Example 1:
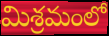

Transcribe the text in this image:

మిశ్రమంలో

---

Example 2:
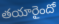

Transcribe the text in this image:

తయారైందో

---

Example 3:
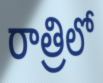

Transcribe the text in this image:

రాత్రిలో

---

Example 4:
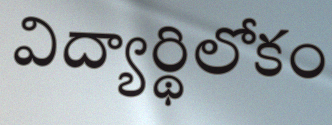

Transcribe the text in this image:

విద్యార్థిలోకం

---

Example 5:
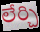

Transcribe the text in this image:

లేర్చి